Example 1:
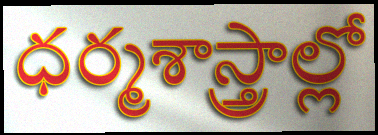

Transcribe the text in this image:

ధర్మశాస్త్రాల్లో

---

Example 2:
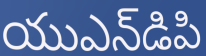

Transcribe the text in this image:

యుఎన్‌డిపి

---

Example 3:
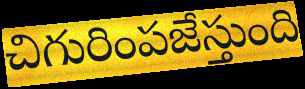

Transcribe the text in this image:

చిగురింపజేస్తుంది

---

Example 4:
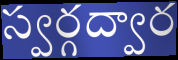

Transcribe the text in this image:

స్వర్గద్వార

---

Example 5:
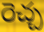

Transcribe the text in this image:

రెచ్చ